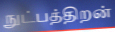
நுட்பத்திறன்